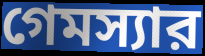
গেমস্যার